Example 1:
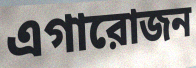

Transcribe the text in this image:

এগারোজন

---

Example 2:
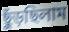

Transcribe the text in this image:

ছুঁড়ছিলাম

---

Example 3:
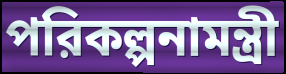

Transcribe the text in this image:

পরিকল্পনামন্ত্রী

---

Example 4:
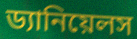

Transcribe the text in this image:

ড্যানিয়েলস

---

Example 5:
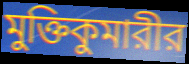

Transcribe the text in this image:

মুক্তিকুমারীর